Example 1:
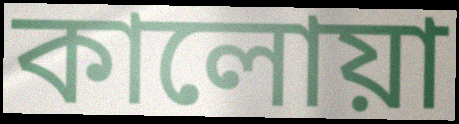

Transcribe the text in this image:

কালোয়া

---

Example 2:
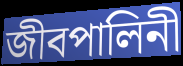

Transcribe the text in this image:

জীবপালিনী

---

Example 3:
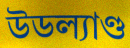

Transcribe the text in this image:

উডল্যাণ্ড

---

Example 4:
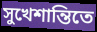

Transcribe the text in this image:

সুখেশান্তিতে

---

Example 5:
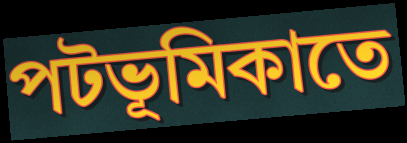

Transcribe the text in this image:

পটভূমিকাতে